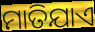
ମାତିଯାଏ